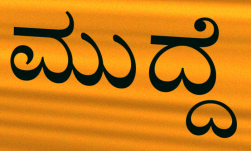
ಮುದ್ದೆ